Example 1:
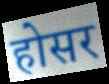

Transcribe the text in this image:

होसर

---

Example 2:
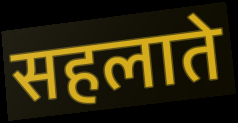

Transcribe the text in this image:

सहलाते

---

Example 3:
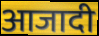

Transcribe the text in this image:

आजादी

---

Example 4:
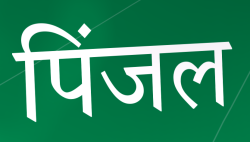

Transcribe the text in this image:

पिंजल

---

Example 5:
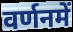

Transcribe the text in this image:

वर्णनमें